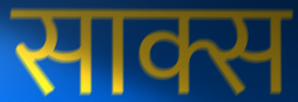
साक्स